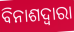
ବିନାଶଦ୍ଵାରା